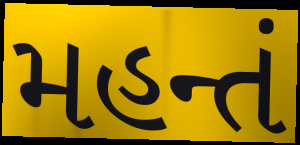
મહન્તં